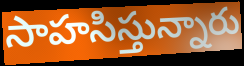
సాహసిస్తున్నారు